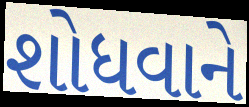
શોધવાને